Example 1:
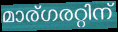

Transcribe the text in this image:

മാര്ഗരറ്റിന്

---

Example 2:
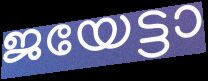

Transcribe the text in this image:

ജയേട്ടാ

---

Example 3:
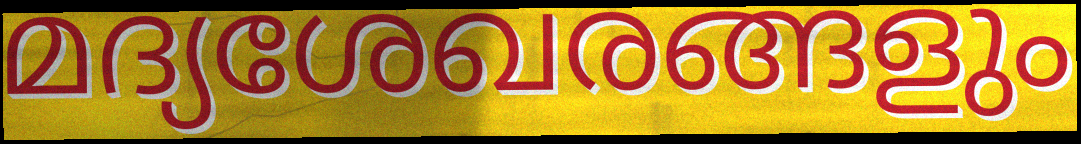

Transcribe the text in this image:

മദ്യശേഖരങ്ങളും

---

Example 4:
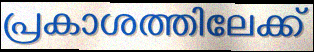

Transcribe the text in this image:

പ്രകാശത്തിലേക്ക്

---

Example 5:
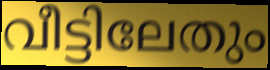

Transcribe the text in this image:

വീട്ടിലേതും